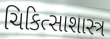
ચિકિત્સાશાસ્ત્ર